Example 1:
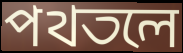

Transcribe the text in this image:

পথতলে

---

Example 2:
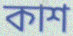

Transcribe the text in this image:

কাশ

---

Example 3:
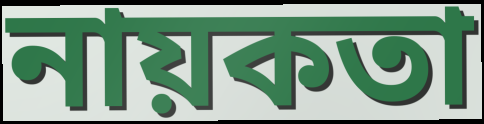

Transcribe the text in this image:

নায়কতা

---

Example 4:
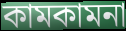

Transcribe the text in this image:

কামকামনা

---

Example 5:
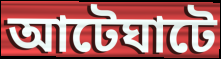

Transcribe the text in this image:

আটেঘাটে